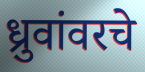
ध्रुवांवरचे